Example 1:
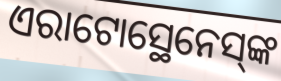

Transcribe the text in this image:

ଏରାଟୋସ୍ଥେନେସ୍‌ଙ୍କ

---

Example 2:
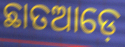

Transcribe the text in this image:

ଛାତଆଡ଼େ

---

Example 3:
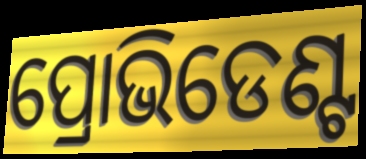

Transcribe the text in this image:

ପ୍ରୋଭିଡେଣ୍ଟ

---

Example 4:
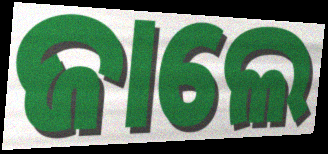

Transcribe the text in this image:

ଜାଲେ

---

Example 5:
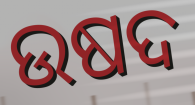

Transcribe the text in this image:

ଉଷଦ